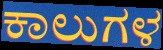
ಕಾಲುಗಳ